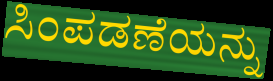
ಸಿಂಪಡಣೆಯನ್ನು